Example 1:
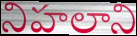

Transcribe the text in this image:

నిహలాని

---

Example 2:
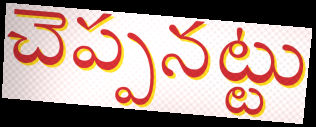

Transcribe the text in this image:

చెప్పనట్టు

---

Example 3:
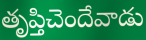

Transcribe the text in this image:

తృప్తిచెందేవాడు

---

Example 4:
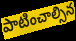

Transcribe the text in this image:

పాటించాల్సిన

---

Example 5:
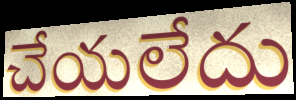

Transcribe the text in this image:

చేయలేదు